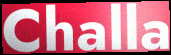
Challa